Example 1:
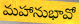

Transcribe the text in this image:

మహానుభావో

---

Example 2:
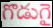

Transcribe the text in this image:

గొడుగై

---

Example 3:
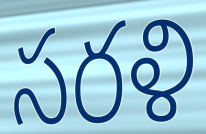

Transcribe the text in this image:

సరళి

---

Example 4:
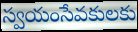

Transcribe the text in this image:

స్వయంసేవకులకు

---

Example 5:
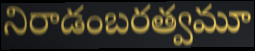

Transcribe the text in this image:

నిరాడంబరత్వమూ